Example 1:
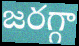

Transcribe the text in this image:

జరగ్గా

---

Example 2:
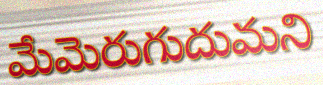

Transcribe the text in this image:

మేమెరుగుదుమని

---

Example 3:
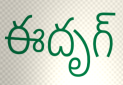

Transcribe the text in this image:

ఈదృగ్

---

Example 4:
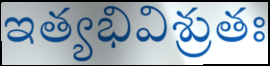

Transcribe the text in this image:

ఇత్యభివిశ్రుతః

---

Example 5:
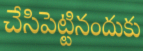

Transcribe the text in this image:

చేసిపెట్టినందుకు